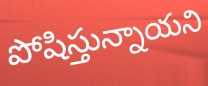
పోషిస్తున్నాయని